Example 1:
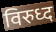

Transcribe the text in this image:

विरुध्द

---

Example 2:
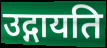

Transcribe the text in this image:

उद्गायति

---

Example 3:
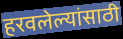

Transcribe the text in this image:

हरवलेल्यांसाठी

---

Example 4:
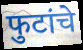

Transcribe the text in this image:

फुटांचे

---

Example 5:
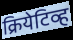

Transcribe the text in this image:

क्रियेटिव्ह